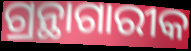
ଗ୍ରନ୍ଥାଗାରୀକ